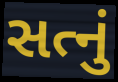
સત્નું